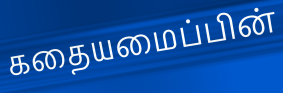
கதையமைப்பின்